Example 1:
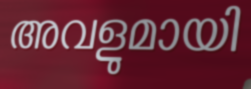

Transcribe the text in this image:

അവളുമായി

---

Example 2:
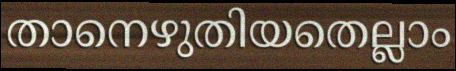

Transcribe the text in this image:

താനെഴുതിയതെല്ലാം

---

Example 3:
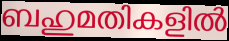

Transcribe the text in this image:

ബഹുമതികളിൽ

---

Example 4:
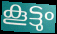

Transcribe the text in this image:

കൂട്ടും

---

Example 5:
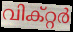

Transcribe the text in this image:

വിക്റ്റർ